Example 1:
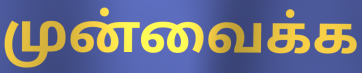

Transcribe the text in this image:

முன்வைக்க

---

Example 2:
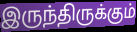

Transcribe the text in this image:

இருந்திருக்கும்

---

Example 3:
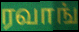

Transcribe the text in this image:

ரவாங்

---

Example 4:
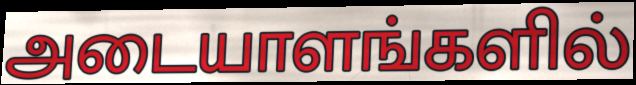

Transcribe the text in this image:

அடையாளங்களில்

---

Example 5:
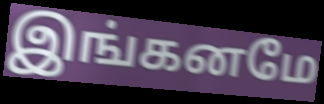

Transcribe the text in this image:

இங்கனமே